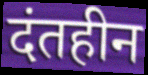
दंतहीन